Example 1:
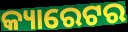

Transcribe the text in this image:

କ୍ୟାରେଟର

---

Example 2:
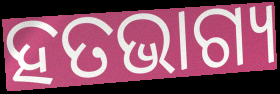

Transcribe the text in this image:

ହତଭାଗ୍ୟ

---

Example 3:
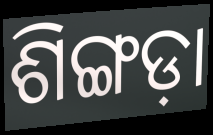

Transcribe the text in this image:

ଶିଙ୍ଗଡ଼ା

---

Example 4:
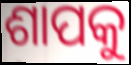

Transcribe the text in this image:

ଶାପକୁ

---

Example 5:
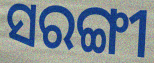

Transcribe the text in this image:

ସରଙ୍ଗୀ